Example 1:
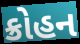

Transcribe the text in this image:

ક્રોહન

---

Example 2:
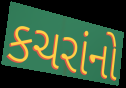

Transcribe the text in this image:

કચરાંનો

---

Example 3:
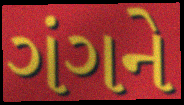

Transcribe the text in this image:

ગંગને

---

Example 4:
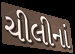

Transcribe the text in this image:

ચીલીનાં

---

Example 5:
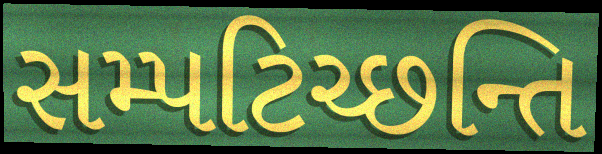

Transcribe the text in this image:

સમ્પટિચ્છન્તિ